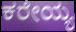
ಕರೇಯ್ಯ